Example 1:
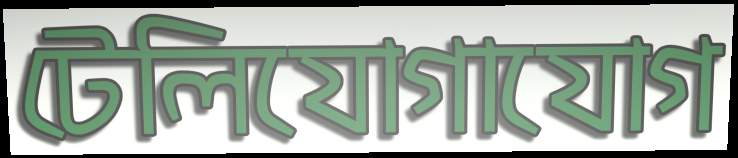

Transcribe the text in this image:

টেলিযোগাযোগ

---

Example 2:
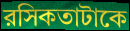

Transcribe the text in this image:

রসিকতাটাকে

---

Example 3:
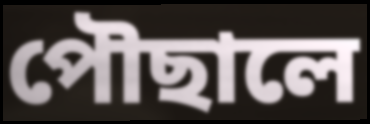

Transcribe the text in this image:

পৌছালে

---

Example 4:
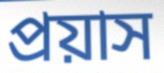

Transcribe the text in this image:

প্রয়াস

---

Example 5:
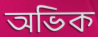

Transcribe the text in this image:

অভিক